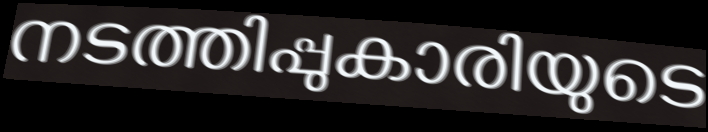
നടത്തിപ്പുകാരിയുടെ